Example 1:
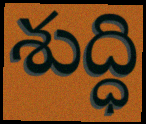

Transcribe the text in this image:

శుద్ధి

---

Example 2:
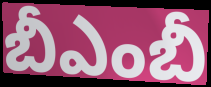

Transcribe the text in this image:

బీఎంబీ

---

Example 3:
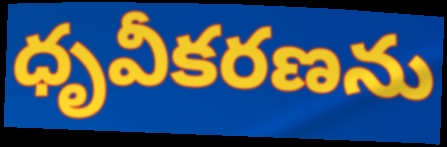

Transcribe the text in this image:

ధృవీకరణను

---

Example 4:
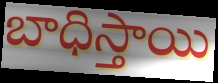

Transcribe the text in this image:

బాధిస్తాయి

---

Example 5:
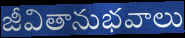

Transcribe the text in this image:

జీవితానుభవాలు